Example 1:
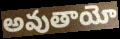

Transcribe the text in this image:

అవుతాయో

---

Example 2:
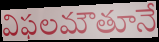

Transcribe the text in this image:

విఫలమౌతూనే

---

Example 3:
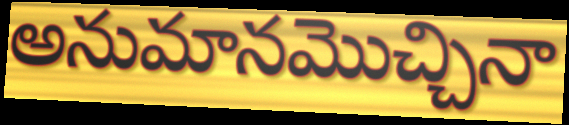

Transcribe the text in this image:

అనుమానమొచ్చినా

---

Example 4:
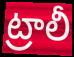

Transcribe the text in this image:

ట్రాలీ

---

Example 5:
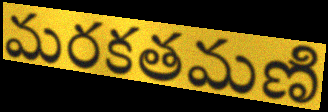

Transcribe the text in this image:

మరకతమణి